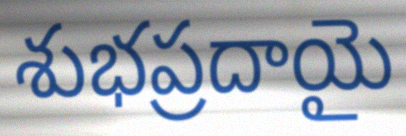
శుభప్రదాయై